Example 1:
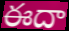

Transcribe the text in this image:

ఈదా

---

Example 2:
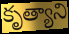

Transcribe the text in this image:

కృత్యాని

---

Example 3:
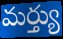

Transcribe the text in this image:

మర్త్యు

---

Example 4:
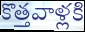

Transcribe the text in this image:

కొత్తవాళ్లకి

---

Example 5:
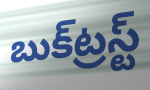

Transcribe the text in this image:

బుక్‌ట్రస్ట్